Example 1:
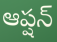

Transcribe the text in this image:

ఆప్షన్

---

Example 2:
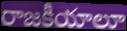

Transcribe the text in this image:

రాజకీయాలూ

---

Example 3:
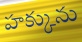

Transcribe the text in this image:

హక్కును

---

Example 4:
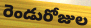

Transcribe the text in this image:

రెండురోజుల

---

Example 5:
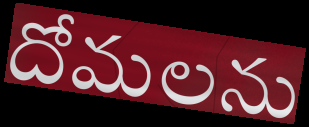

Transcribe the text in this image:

దోమలను